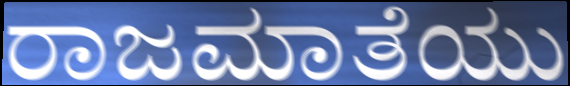
ರಾಜಮಾತೆಯು